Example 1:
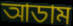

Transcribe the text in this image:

আডাম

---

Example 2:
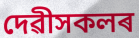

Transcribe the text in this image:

দেৱীসকলৰ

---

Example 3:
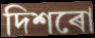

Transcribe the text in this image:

দিশৰো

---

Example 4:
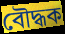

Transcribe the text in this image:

বৌদ্ধক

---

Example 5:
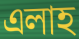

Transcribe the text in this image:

এলাহ